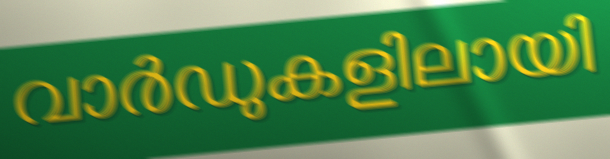
വാർഡുകളിലായി